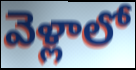
వెళ్లాలో